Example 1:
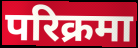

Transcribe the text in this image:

परिक्रमा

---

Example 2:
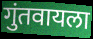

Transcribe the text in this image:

गुंतवायला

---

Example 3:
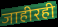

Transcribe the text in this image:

जाहीरही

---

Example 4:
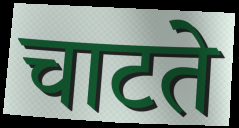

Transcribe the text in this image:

चाटते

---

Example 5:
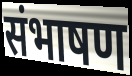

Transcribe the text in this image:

संभाषण